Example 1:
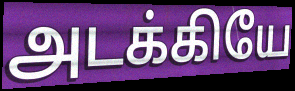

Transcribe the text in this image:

அடக்கியே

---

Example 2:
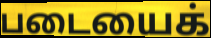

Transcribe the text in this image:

படையைக்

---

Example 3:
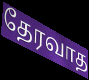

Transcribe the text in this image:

தேரவாத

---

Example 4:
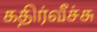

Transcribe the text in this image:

கதிர்வீச்சு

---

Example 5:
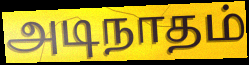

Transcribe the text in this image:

அடிநாதம்